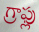
గ్రాఫ్లు